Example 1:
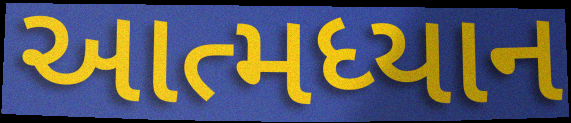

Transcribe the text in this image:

આત્મધ્યાન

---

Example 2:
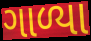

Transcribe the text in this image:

ગાળ્યા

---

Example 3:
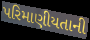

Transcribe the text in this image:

પરિમાણીયતાની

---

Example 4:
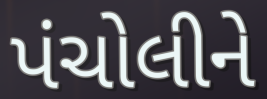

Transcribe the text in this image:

પંચોલીને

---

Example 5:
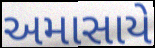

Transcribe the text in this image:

અમાસાયે